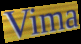
Vima